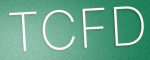
TCFD